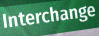
Interchange